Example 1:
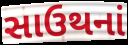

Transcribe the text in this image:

સાઉથનાં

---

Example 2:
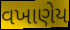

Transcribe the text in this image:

વખાણેય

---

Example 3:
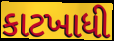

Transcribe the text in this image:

કાટખાધી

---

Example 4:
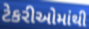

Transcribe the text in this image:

ટેકરીઓમાંથી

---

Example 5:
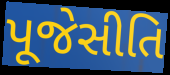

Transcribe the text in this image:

પૂજેસીતિ